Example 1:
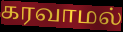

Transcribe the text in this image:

கரவாமல்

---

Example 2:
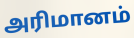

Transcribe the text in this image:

அரிமானம்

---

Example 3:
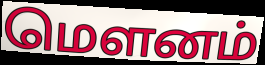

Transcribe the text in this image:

மெளனம்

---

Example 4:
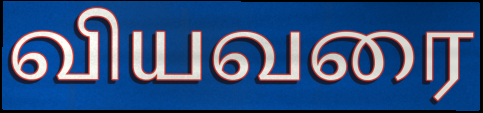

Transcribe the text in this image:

வியவரை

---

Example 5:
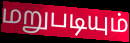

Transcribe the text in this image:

மறுபடியும்